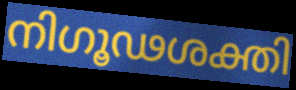
നിഗൂഢശക്തി